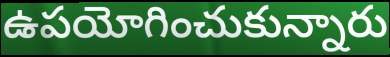
ఉపయోగించుకున్నారు